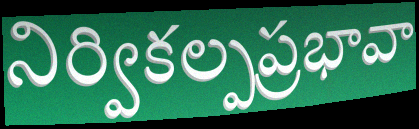
నిర్వికల్పప్రభావా